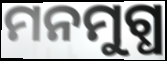
ମନମୁଗ୍ଧ